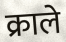
क्राले